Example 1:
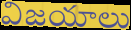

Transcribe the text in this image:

విజయాలు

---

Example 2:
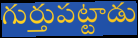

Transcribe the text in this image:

గుర్తుపట్టాడు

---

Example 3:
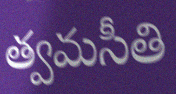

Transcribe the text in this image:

త్వమసీతి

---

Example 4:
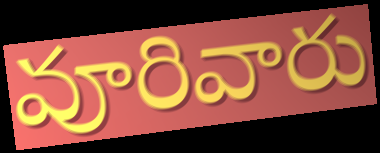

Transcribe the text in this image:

వూరివారు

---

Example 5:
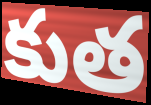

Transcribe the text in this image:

కుత